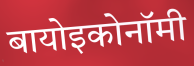
बायोइकोनॉमी